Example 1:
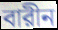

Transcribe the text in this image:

বারীন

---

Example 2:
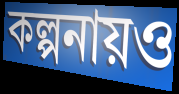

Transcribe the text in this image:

কল্পনায়ও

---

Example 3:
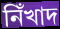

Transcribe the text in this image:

নিঁখাদ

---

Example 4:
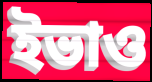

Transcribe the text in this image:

ইভাও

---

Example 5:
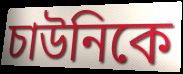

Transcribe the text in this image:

চাউনিকে